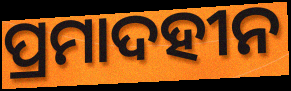
ପ୍ରମାଦହୀନ